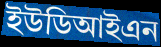
ইউডিআইএন